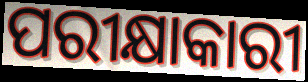
ପରୀକ୍ଷାକାରୀ